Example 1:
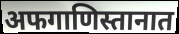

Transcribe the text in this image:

अफगाणिस्तानात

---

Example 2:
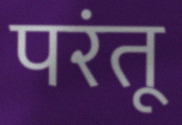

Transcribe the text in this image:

परंतू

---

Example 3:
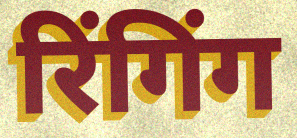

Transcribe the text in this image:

रिंगिंग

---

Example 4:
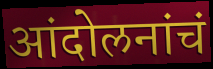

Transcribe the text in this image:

आंदोलनांचं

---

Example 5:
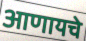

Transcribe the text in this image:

आणायचे